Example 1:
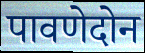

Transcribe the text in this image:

पावणेदोन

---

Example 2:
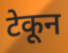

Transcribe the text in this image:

टेकून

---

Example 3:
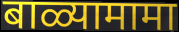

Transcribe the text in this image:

बाळ्यामामा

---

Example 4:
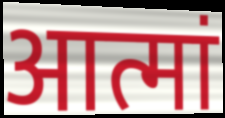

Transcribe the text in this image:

आत्मां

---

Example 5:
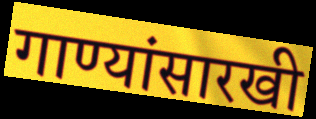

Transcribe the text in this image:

गाण्यांसारखी